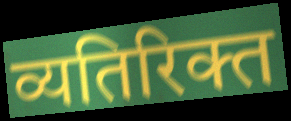
व्यतिरिक्त